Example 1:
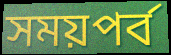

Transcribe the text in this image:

সময়পর্ব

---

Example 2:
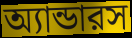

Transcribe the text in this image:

অ্যান্ডারস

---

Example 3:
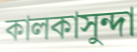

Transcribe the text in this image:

কালকাসুন্দা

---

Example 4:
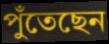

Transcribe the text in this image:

পুঁতেছেন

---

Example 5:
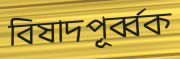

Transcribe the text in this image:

বিষাদপূর্ব্বক